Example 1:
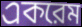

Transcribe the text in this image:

একরেম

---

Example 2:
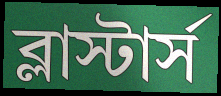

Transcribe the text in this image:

ব্লাস্টার্স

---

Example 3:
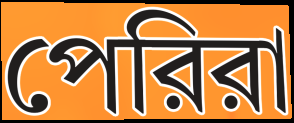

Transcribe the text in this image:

পেরিরা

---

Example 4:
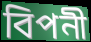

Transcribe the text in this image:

বিপনী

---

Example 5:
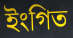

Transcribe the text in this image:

ইংগিত